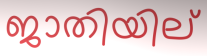
ജാതിയില്